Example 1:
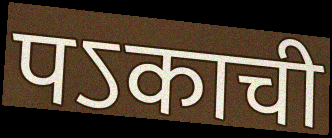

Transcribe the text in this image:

पऽकाची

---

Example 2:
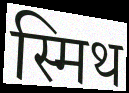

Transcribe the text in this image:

स्मिथ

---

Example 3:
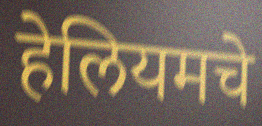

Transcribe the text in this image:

हेलियमचे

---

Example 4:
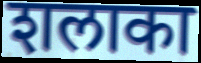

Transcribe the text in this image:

शलाका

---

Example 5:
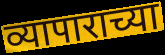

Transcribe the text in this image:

व्यापाराच्या